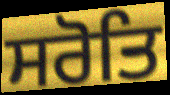
ਸਰੋਤਿ